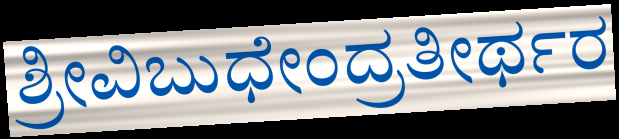
ಶ್ರೀವಿಬುಧೇಂದ್ರತೀರ್ಥರ